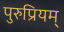
पुरुप्रियम्